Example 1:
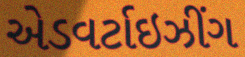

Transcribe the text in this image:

એડવર્ટાઇઝીંગ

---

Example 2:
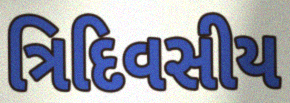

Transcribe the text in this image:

ત્રિદિવસીય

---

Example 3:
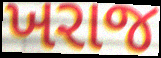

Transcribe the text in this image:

ખરાજ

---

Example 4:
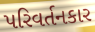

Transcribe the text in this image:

પરિવર્તનકાર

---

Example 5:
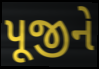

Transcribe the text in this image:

પૂજીને